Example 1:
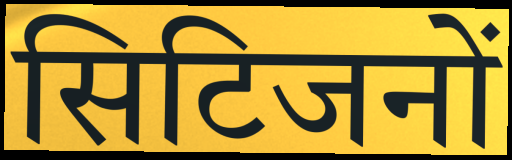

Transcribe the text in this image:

सिटिजनों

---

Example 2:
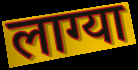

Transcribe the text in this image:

लाग्या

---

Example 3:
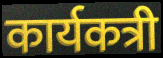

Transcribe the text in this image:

कार्यकत्री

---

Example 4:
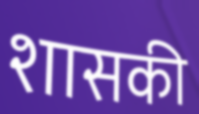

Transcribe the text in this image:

शासकी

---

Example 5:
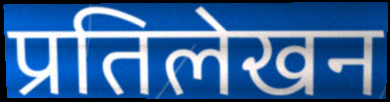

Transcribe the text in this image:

प्रतिलेखन